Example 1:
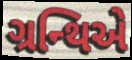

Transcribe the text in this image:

ગ્રન્થિએ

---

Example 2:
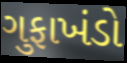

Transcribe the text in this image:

ગુફાખંડો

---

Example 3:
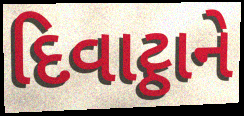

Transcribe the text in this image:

દિવાટ્ઠાને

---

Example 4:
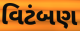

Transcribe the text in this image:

વિટંબણ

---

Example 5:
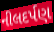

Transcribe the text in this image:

નીલદર્પણ